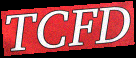
TCFD